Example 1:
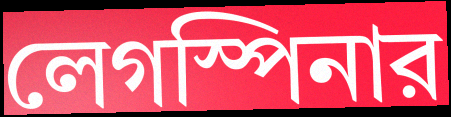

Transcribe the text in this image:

লেগস্পিনার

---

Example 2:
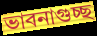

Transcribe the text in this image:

ভাবনাগুচ্ছ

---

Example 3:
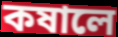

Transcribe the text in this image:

কষালে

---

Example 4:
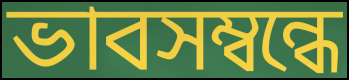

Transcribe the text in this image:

ভাবসম্বন্ধে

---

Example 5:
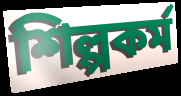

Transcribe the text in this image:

শিল্পকর্ম